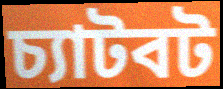
চ্যাটবট